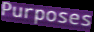
Purposes